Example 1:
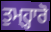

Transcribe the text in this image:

ਤੁਮ੍ਹ੍ਹਾਰੋ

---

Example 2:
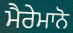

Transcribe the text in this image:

ਮੈਰੇਮਾਨੋ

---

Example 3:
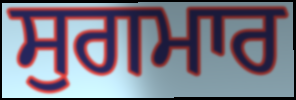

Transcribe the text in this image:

ਸੁਗਮਾਰ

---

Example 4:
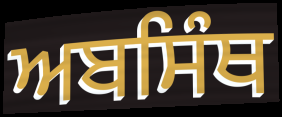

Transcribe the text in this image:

ਅਬਸਿੰਥ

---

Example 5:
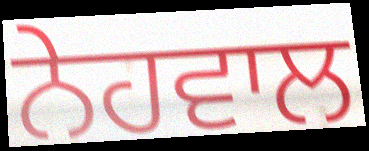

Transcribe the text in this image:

ਨੇਹਵਾਲ